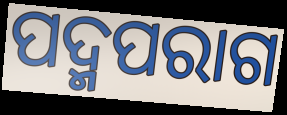
ପଦ୍ମପରାଗ